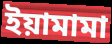
ইয়ামামা